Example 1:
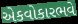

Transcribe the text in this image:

એકવોકારભવે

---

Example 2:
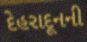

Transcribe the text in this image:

દેહરાદૂનની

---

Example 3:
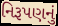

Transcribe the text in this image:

નિરૂપણનું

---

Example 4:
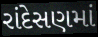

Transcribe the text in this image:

રાંદેસણમાં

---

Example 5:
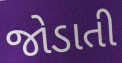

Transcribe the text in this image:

જોડાતી